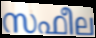
സഫീല